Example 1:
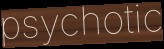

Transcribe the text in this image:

psychotic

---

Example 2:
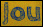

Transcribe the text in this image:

Jou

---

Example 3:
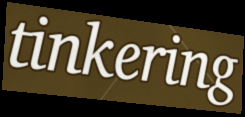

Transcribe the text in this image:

tinkering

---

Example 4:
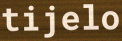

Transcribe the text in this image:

tijelo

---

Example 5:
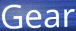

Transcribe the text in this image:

Gear